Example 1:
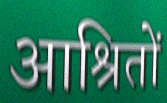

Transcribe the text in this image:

आश्रितों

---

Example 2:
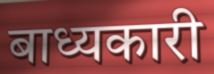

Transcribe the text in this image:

बाध्‍यकारी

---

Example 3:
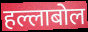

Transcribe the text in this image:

हल्लाबोल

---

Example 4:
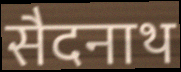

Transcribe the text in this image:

सैदनाथ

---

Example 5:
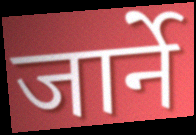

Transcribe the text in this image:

जार्ने